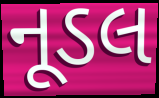
નૂડલ